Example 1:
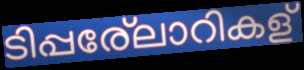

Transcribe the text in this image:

ടിപ്പര്ലോറികള്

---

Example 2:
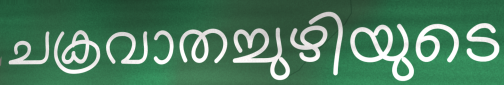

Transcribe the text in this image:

ചക്രവാതച്ചുഴിയുടെ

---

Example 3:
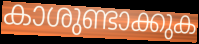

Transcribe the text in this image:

കാശുണ്ടാക്കുക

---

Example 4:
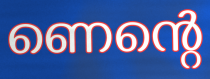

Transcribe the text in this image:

ണെന്റെ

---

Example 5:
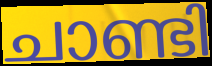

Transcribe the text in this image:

ചാണ്ടി